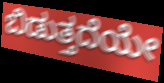
ಬಿಡುತ್ತದೆಯೇ